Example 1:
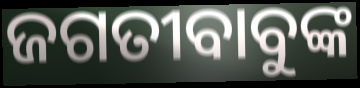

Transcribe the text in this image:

ଜଗତୀବାବୁଙ୍କ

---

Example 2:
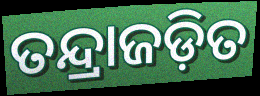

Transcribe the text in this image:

ତନ୍ଦ୍ରାଜଡ଼ିତ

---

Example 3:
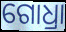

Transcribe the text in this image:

ଗୋଧ୍ରା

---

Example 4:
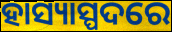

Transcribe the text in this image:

ହାସ୍ୟାସ୍ପଦରେ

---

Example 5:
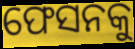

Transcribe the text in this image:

ଫେସନକୁ